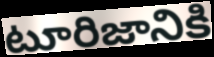
టూరిజానికి